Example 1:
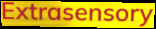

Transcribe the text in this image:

Extrasensory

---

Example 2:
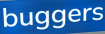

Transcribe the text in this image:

buggers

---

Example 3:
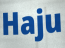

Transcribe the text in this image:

Haju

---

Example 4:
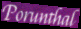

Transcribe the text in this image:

Porunthal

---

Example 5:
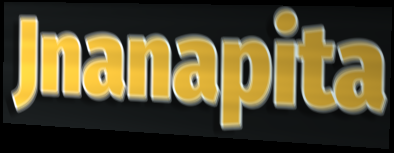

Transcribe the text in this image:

Jnanapita